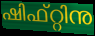
ഷിഫ്റ്റിനു